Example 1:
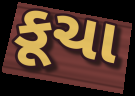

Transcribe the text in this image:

કૂચા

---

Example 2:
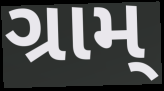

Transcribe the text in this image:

ગ્રામ્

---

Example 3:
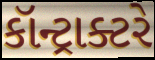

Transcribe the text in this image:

કૉન્ટ્રાક્ટરે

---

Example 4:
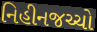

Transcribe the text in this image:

નિહીનજચ્ચો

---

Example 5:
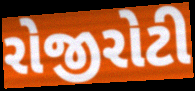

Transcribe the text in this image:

રોજીરોટી